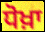
ਧੋਖ਼ਾ